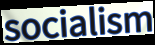
socialism